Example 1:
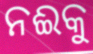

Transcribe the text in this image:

ନଈକୁ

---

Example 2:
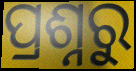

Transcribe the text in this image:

ପ୍ରଶ୍ନରୁ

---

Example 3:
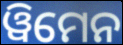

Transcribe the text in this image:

ୱିମେନ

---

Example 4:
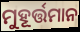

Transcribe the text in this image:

ମୁହୂର୍ତ୍ତମାନ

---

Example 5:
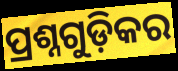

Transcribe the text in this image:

ପ୍ରଶ୍ନଗୁଡ଼ିକର